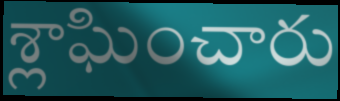
శ్లాఘించారు